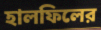
হালফিলের